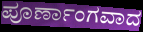
ಪೂರ್ಣಾಂಗವಾದ